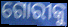
ଗୋରୀକୁ